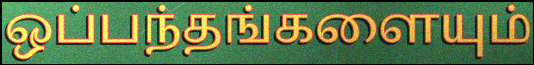
ஒப்பந்தங்களையும்